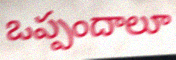
ఒప్పందాలూ